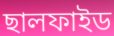
ছালফাইড